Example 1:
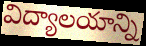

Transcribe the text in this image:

విద్యాలయాన్ని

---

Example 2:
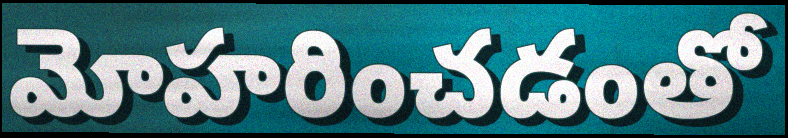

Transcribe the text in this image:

మోహరించడంతో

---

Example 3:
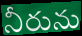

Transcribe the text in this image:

నీరును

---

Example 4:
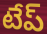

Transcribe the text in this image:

టేప్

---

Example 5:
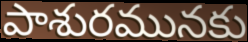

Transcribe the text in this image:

పాశురమునకు